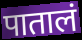
पातालं